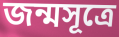
জন্মসূত্ৰে